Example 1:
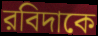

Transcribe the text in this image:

রবিদাকে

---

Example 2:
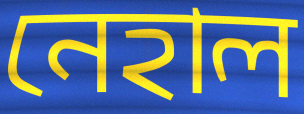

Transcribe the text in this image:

নেহাল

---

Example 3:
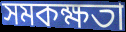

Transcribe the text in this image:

সমকক্ষতা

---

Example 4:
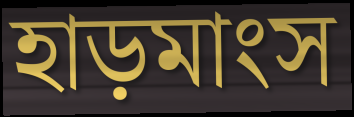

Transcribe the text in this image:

হাড়মাংস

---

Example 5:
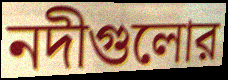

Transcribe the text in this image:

নদীগুলোর